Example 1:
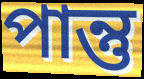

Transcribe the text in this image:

পান্তু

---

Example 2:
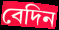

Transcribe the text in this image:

বেদিন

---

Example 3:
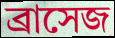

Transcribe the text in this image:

ব্রাসেজ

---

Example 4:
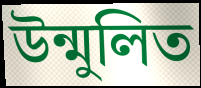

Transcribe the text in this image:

উন্মুলিত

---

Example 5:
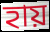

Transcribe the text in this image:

হায়